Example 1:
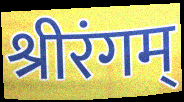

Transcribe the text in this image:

श्रीरंगम्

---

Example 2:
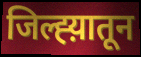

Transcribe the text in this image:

जिल्ह्य़ातून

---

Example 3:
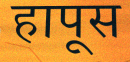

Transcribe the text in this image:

हापूस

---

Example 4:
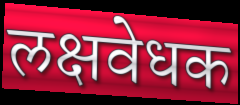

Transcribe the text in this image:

लक्षवेधक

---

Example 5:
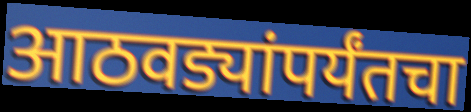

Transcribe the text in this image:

आठवड्यांपर्यंतचा